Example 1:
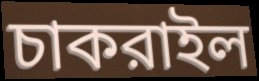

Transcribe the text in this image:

চাকরাইল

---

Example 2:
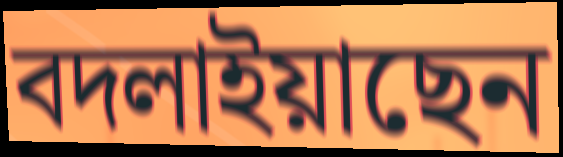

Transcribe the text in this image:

বদলাইয়াছেন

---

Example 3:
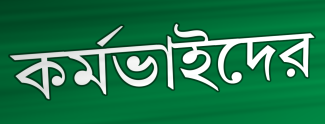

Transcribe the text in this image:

কর্মভাইদের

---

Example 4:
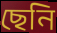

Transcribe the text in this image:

ছেনি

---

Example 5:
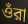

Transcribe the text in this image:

ওঁরা